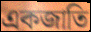
একজাতি